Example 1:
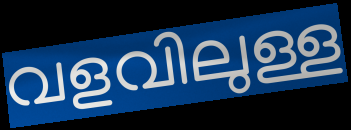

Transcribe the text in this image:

വളവിലുള്ള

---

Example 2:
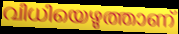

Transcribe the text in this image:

വിധിയെഴുത്താണ്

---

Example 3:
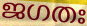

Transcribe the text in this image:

ജഗതഃ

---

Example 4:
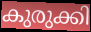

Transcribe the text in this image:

കുരുക്കി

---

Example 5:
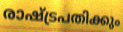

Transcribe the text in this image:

രാഷ്ട്രപതിക്കും